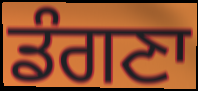
ਡੰਗਣਾ